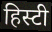
हिस्टी